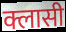
क्लासी